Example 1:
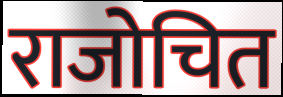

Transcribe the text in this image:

राजोचित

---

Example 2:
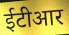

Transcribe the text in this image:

ईटीआर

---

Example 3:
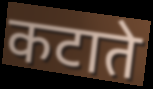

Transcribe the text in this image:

कटाते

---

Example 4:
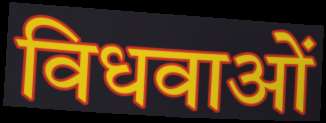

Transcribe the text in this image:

विधवाओं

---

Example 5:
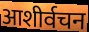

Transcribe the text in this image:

आशीर्वचन